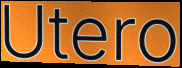
Utero